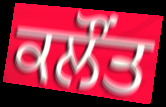
ਕਲੌਂਤ